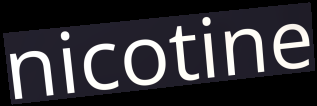
nicotine